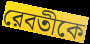
রেবতীকে